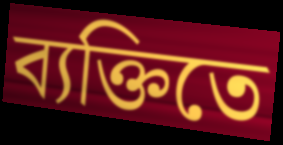
ব্যক্তিতে